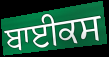
ਬਾਈਕਸ